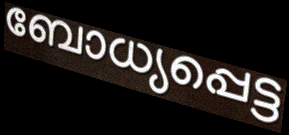
ബോധ്യപ്പെട്ട